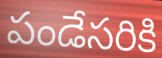
పండేసరికి